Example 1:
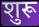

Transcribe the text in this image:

शुरू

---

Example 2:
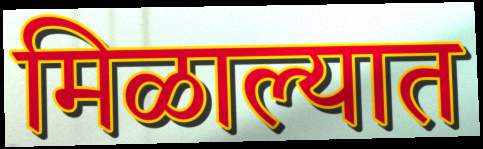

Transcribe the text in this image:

मिळाल्यात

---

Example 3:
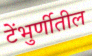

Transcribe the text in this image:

टेंभुर्णीतील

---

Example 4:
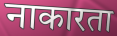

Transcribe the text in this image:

नाकारता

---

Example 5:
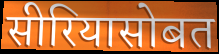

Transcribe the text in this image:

सीरियासोबत